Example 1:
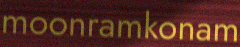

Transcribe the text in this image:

moonramkonam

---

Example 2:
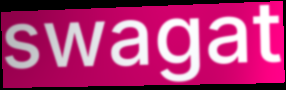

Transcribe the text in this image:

swagat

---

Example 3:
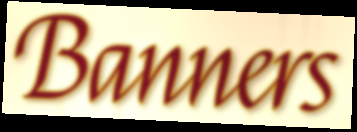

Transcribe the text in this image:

Banners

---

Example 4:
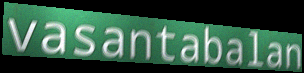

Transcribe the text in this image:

vasantabalan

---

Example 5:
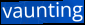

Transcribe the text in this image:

vaunting